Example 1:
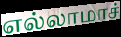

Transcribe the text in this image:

எல்லாமாச்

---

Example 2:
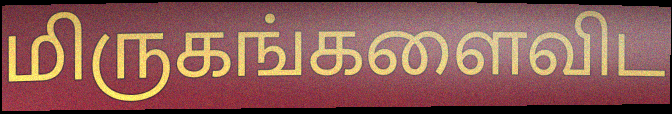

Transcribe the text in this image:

மிருகங்களைவிட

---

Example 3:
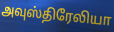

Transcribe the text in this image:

அவுஸ்திரேலியா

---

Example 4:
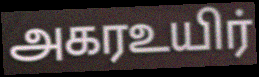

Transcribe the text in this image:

அகரஉயிர்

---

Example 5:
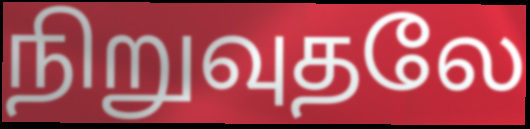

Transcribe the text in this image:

நிறுவுதலே